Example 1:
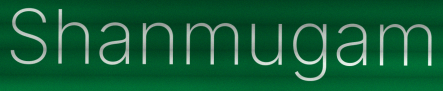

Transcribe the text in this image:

Shanmugam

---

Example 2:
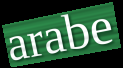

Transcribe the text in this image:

arabe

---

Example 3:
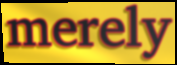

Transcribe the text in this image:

merely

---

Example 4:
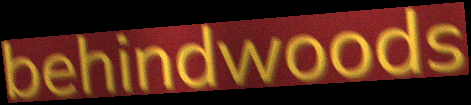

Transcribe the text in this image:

behindwoods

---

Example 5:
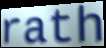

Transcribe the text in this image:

rath